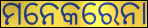
ମନେକରେନା